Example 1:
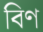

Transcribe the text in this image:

বিণ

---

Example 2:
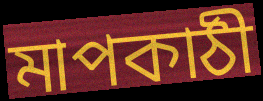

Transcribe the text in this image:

মাপকাঠী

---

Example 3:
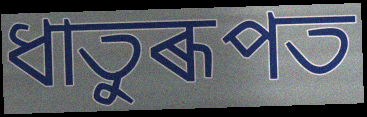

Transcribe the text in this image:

ধাতুৰূপত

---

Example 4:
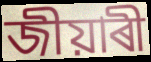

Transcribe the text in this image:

জীয়াৰী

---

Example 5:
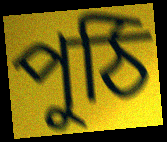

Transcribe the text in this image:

পুঠি